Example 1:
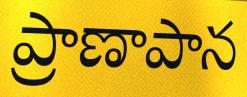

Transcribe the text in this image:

ప్రాణాపాన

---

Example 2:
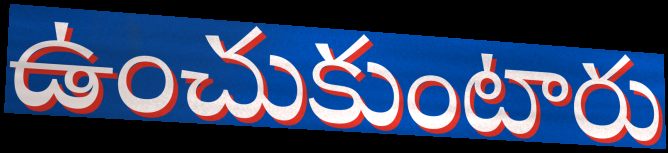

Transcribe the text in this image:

ఉంచుకుంటారు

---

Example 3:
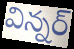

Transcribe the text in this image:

విన్నర్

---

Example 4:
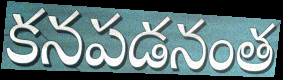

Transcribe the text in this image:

కనపడనంత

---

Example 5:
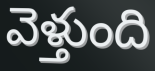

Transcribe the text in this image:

వెళ్తుంది